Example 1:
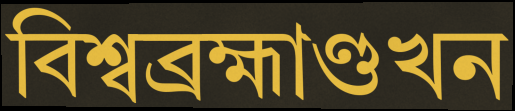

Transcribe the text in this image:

বিশ্বব্ৰহ্মাণ্ডখন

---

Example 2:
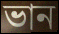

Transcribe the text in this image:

ভান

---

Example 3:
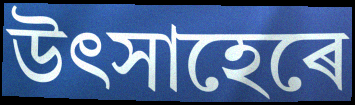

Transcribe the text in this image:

উৎসাহেৰে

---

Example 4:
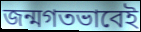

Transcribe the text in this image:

জন্মগতভাবেই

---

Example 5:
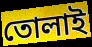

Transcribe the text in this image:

তোলাই